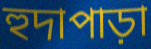
হুদাপাড়া